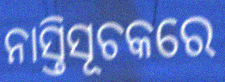
ନାସ୍ତିସୂଚକରେ